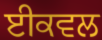
ਈਕਵਲ